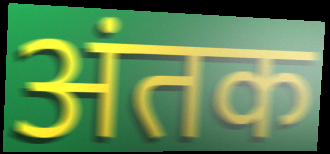
अंतक